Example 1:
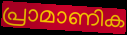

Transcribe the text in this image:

പ്രാമാണിക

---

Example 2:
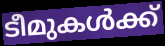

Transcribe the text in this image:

ടീമുകൾക്ക്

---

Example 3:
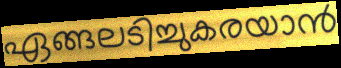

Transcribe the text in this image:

ഏങ്ങലടിച്ചുകരയാൻ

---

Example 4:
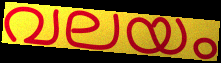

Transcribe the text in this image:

വലയം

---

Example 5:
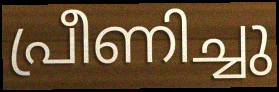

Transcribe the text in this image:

പ്രീണിച്ചു